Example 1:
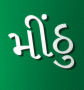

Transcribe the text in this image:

મીંઠુ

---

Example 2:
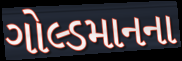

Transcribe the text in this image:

ગોલ્ડમાનના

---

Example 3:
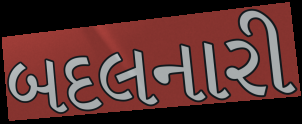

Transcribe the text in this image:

બદલનારી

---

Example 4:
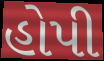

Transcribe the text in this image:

હોપી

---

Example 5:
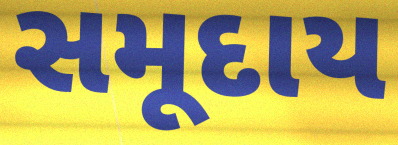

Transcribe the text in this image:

સમૂદાય